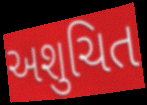
અશુચિત